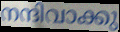
നന്ദിവാക്കു